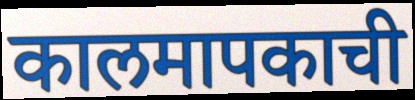
कालमापकाची